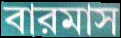
বারমাস